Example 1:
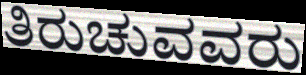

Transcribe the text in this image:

ತಿರುಚುವವರು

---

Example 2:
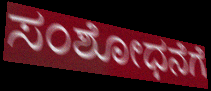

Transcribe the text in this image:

ಸಂಶೋಧನೆಗೆ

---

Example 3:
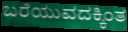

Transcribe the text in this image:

ಬರೆಯುವದಕ್ಕಿಂತ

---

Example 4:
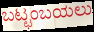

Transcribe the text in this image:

ಬಟ್ಟಂಬಯಲು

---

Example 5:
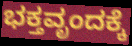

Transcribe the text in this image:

ಭಕ್ತವೃಂದಕ್ಕೆ